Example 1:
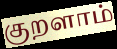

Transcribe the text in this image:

குறளாம்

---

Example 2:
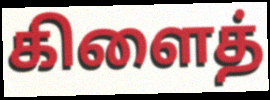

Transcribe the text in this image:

கிளைத்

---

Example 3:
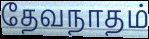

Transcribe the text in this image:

தேவநாதம்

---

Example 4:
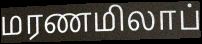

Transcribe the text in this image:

மரணமிலாப்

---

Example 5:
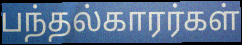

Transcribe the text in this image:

பந்தல்காரர்கள்